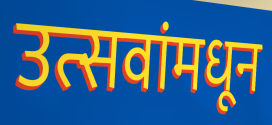
उत्सवांमधून